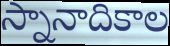
స్నానాదికాల